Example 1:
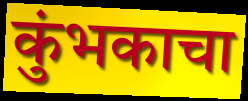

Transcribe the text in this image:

कुंभकाचा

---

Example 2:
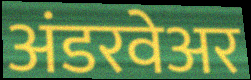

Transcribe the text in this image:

अंडरवेअर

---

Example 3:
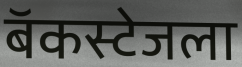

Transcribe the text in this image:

बॅकस्टेजला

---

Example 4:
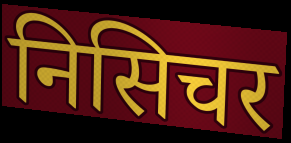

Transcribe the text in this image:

निसिचर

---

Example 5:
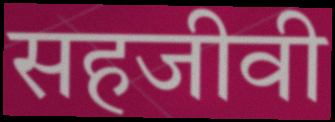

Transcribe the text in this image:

सहजीवी